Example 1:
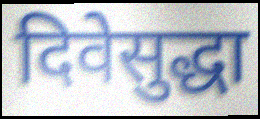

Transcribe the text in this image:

दिवेसुद्धा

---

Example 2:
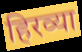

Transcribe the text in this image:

हिरव्‍या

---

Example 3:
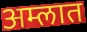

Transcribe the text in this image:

अम्लात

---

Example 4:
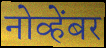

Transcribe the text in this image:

नोव्हेंबर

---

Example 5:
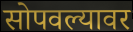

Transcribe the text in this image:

सोपवल्यावर